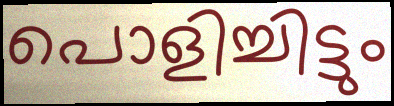
പൊളിച്ചിട്ടും